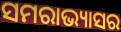
ସମରାଭ୍ୟାସର